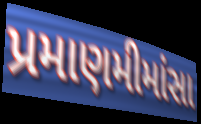
પ્રમાણમીમાંસા